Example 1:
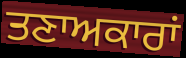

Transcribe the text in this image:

ਤਣਾਅਕਾਰਾਂ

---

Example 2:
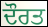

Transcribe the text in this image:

ਦੌਰਤ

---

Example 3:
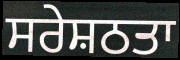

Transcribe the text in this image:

ਸਰੇਸ਼ਠਤਾ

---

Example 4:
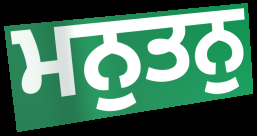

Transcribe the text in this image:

ਮਨੁਤਨੁ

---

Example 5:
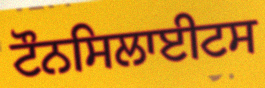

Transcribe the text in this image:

ਟੌਨਸਿਲਾਈਟਸ